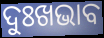
ଦୁଃଖଭାବ